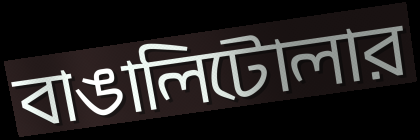
বাঙালিটোলার